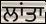
ਲਾਂਤਾ